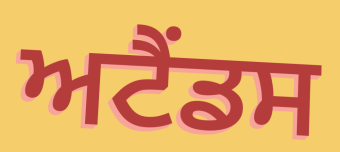
ਅਟੈਂਡਸ